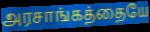
அரசாங்கத்தையே